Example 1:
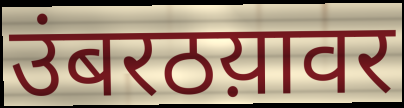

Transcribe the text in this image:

उंबरठय़ावर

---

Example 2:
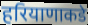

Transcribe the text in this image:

हरियाणाकडे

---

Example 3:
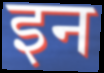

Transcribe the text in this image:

इन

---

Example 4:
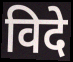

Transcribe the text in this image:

विदे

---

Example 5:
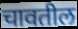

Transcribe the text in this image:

चावतील